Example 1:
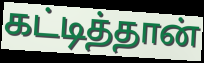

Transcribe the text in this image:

கட்டித்தான்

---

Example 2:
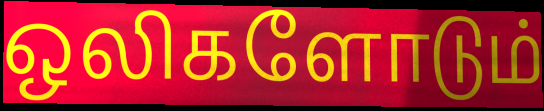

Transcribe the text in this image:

ஒலிகளோடும்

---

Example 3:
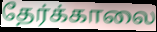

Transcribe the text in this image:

தேர்க்காலை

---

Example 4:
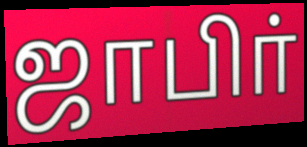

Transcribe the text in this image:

ஜாபிர்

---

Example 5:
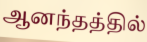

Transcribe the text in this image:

ஆனந்தத்தில்